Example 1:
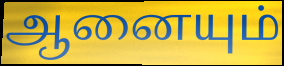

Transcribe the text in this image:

ஆனையும்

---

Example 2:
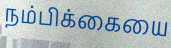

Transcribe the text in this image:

நம்பிக்கையை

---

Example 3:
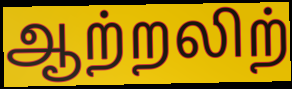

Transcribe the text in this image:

ஆற்றலிற்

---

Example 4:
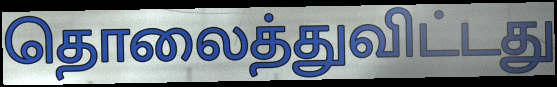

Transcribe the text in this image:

தொலைத்துவிட்டது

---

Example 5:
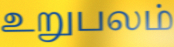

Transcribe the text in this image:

உறுபலம்